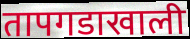
तापगडाखाली